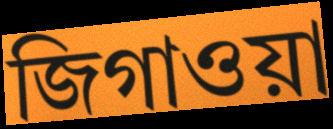
জিগাওয়া